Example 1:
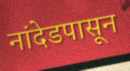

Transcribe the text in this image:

नांदेडपासून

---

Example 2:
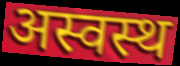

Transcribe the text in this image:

अस्वस्थ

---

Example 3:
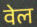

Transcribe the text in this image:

वेल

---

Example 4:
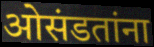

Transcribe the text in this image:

ओसंडतांना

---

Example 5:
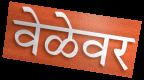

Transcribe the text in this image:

वेळेवर